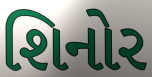
શિનોર